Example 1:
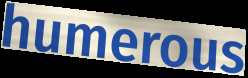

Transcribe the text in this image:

humerous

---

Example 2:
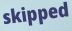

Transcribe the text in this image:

skipped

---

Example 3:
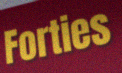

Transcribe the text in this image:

Forties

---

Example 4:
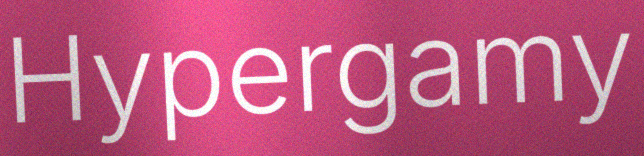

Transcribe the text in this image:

Hypergamy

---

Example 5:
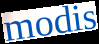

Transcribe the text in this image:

modis